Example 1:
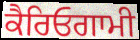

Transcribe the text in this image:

ਕੈਰਿਓਗਾਮੀ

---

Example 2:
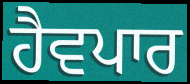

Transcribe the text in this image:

ਹੈਵਪਾਰ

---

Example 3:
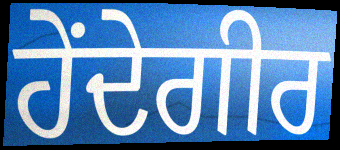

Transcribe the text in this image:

ਹੇਂਦੇਗੀਰ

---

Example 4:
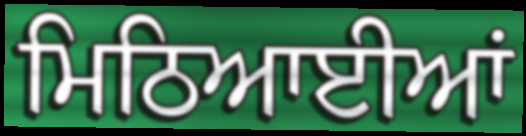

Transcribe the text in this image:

ਮਿਠਿਆਈਆਂ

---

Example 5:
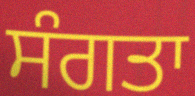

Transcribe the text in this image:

ਸੰਗਤਾ